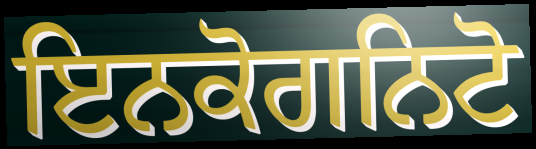
ਇਨਕੋਗਨਿਟੋ